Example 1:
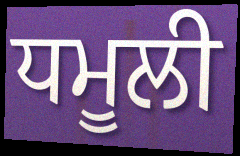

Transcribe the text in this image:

ਧਮੂਲੀ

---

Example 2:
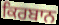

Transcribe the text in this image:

ਕਿਰਬਾਨ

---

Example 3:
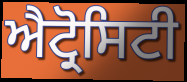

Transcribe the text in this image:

ਐਟ੍ਰੋਸਿਟੀ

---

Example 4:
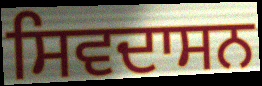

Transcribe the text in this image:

ਸਿਵਦਾਸਨ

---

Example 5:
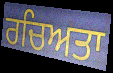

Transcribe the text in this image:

ਰਚਿਅਤਾ